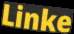
Linke